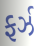
ફર્ઝ